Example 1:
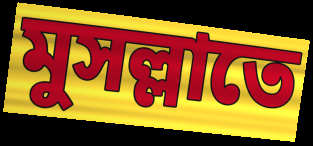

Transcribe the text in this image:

মুসল্লাতে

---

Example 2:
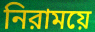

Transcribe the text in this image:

নিরাময়ে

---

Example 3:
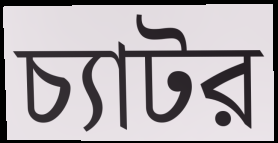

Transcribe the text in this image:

চ্যাটর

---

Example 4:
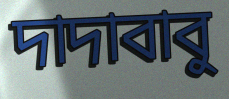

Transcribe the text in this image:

দাদাবাবু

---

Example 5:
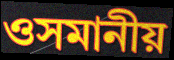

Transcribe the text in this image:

ওসমানীয়